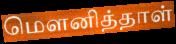
மௌனித்தாள்